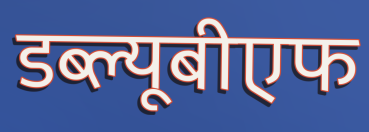
डब्ल्यूबीएफ